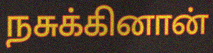
நசுக்கினான்